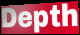
Depth